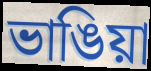
ভাঙিয়া